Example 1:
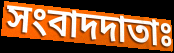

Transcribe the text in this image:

সংবাদদাতাঃ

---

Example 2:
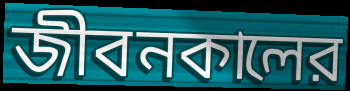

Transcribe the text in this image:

জীবনকালের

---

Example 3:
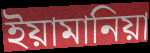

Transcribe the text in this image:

ইয়ামানিয়া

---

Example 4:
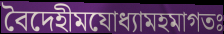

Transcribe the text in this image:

বৈদেহীমযোধ্যামহমাগতঃ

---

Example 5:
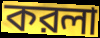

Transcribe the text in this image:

করলা